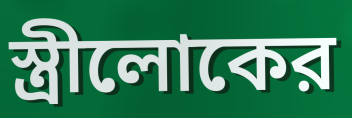
স্ত্রীলোকের